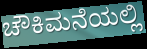
ಚೌಕಿಮನೆಯಲ್ಲಿ